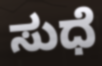
ಸುಧೆ